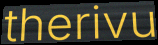
therivu